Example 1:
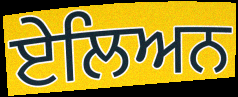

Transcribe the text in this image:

ਏਲਿਅਨ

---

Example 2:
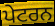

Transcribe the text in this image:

ਪੇਟਰਨ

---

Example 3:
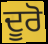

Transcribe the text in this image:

ਦੂਰੋ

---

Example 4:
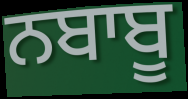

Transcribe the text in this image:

ਨਬਾਬੂ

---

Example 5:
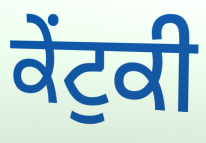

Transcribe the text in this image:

ਕੇਂਟੁਕੀ